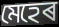
মেহেৰ